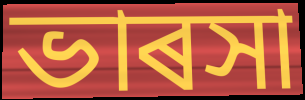
ভাৰসা